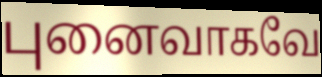
புனைவாகவே